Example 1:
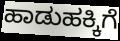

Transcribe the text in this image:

ಹಾಡುಹಕ್ಕಿಗೆ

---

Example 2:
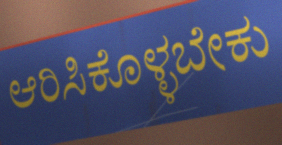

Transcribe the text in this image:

ಆರಿಸಿಕೊಳ್ಳಬೇಕು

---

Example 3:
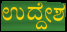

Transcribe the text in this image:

ಉದ್ದೇಶ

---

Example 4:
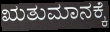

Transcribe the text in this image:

ಋತುಮಾನಕ್ಕೆ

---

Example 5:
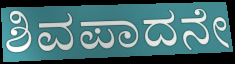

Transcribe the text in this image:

ಶಿವಪಾದನೇ